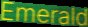
Emerald